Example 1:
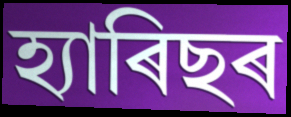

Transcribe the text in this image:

হ্যাৰিছৰ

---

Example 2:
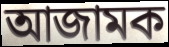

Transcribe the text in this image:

আজামক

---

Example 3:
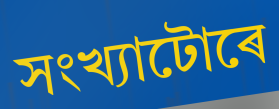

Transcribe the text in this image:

সংখ্যাটোৰে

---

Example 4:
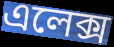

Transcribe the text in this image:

এলেক্স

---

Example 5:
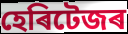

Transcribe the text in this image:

হেৰিটেজৰ